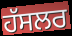
ਹੱਸਲਰ